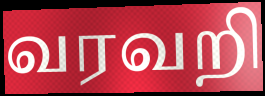
வரவறி